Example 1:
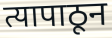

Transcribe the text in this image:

त्यापाठून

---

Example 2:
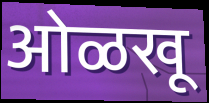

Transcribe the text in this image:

ओळखू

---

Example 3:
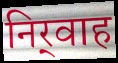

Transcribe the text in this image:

निर्वाह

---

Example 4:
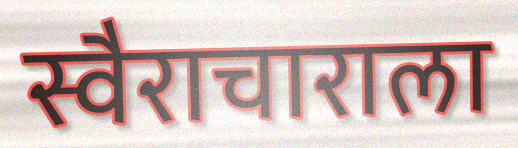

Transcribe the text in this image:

स्वैराचाराला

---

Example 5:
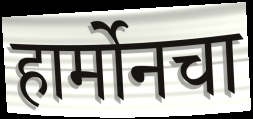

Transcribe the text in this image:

हार्मोनचा